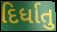
દિર્ધાતુ